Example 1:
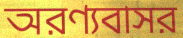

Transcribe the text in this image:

অরণ্যবাসর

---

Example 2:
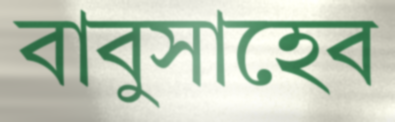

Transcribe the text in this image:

বাবুসাহেব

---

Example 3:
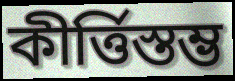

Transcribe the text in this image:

কীর্ত্তিস্তম্ভ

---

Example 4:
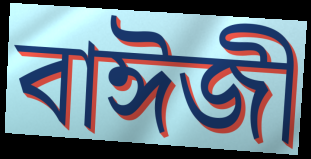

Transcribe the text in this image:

বাঈজী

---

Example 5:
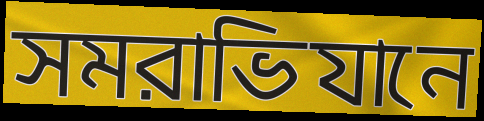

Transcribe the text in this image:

সমরাভিযানে